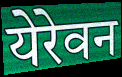
येरेवन